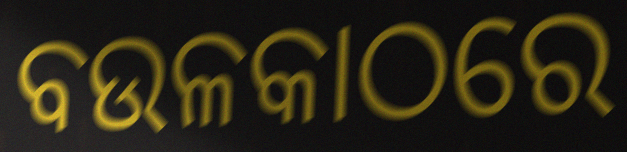
ବଉଳକାଠରେ